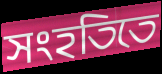
সংহতিতে